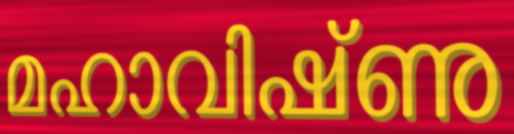
മഹാവിഷ്‌ണു